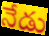
నేడు